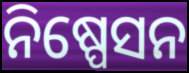
ନିଷ୍ପେସନ